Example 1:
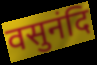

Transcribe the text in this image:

वसुनंदि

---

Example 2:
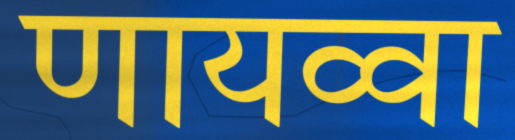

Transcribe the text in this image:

णायव्वा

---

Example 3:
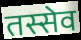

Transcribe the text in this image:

तस्सेव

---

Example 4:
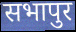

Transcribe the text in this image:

सभापुर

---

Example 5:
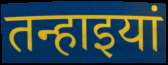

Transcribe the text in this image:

तन्हाइयां